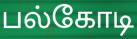
பல்கோடி